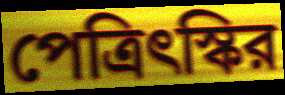
পেত্রিৎস্কির